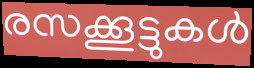
രസക്കൂട്ടുകൾ